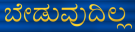
ಬೇಡುವುದಿಲ್ಲ